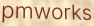
pmworks